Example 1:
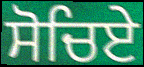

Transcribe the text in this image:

ਸੋਚਿਏ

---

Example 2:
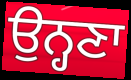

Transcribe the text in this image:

ਉਨ੍ਹਣਾ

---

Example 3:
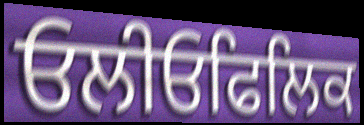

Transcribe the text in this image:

ਓਲੀਓਫਿਲਿਕ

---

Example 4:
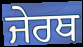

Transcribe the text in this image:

ਜੇਰਥ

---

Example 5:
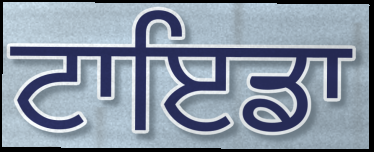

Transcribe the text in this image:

ਟਾਇਡਾ